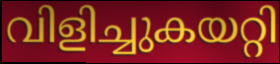
വിളിച്ചുകയറ്റി